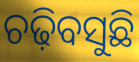
ଚଢ଼ିବସୁଛି